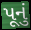
પૂનું